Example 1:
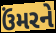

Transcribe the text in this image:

ઉંમરને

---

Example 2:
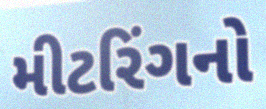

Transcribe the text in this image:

મીટરિંગનો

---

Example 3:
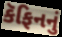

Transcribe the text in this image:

કૅફિનનું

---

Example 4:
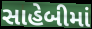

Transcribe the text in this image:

સાહેબીમાં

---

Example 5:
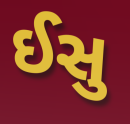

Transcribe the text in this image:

ઈસુ